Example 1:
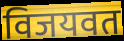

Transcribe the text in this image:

विजयवत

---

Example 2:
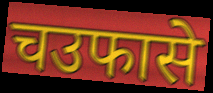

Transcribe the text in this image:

चउफासे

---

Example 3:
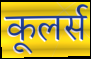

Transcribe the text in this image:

कूलर्स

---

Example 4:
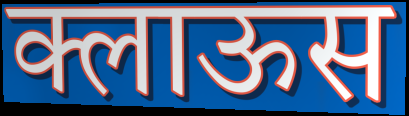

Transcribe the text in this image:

क्लाऊस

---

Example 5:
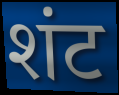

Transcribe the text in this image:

शंट